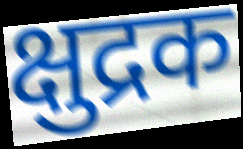
क्षुद्रक